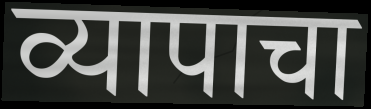
व्यापाचा